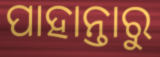
ପାହାନ୍ତାରୁ